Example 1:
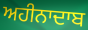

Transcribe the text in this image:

ਅਹੀਨਾਦਾਬ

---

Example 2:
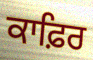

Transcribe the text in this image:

ਕਾਫ਼ਿਰ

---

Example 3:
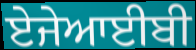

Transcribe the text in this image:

ਏਜੇਆਈਬੀ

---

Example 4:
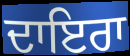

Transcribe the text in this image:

ਦਾਇਰਾ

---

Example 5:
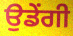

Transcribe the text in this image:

ਉਡੇਂਗੀ